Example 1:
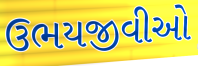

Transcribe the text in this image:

ઉભયજીવીઓ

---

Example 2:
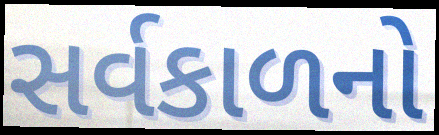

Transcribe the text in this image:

સર્વકાળનો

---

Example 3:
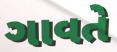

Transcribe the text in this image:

ગાવતે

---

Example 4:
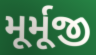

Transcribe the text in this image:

મૂર્મૂજી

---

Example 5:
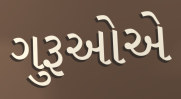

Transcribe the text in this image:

ગુરૂઓએ